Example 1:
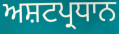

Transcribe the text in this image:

ਅਸ਼ਟਪ੍ਰਧਾਨ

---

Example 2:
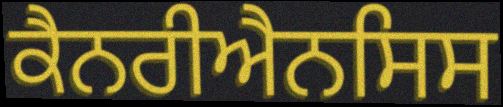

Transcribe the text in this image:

ਕੈਨਰੀਐਨਸਿਸ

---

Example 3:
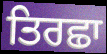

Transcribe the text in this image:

ਤਿਰਛਾ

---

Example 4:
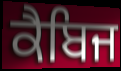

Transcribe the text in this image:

ਕੈਬਿਜ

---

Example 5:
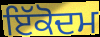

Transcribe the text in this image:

ਇੱਕੋਦਮ